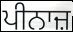
ਪੀਨਾਜ਼